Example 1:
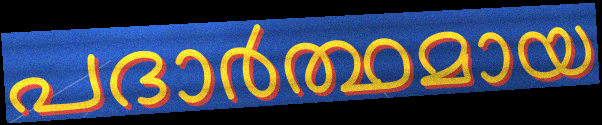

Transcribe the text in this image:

പദാർത്ഥമായ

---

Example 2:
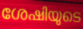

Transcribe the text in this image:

ശേഷിയുടെ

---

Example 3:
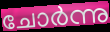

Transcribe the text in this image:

ചോർന്നു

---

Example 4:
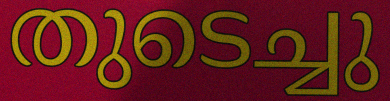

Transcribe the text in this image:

തുടെച്ചു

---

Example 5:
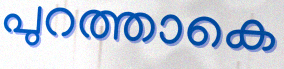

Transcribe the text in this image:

പുറത്താകെ